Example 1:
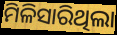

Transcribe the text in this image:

ମିଳିସାରିଥିଲା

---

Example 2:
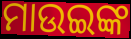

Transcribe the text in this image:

ମାଉଇଙ୍କ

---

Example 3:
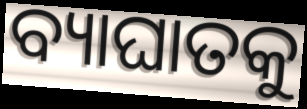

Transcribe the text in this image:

ବ୍ୟାଘାତକୁ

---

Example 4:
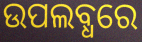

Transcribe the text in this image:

ଉପଲବ୍ଧରେ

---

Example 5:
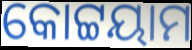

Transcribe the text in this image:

କୋଟ୍ଟୟାମ